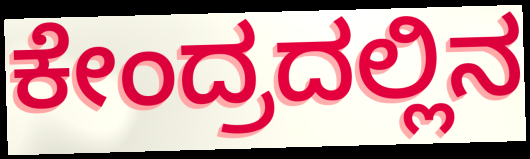
ಕೇಂದ್ರದಲ್ಲಿನ